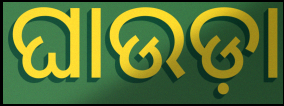
ଘାଉଡ଼ା